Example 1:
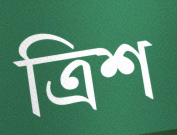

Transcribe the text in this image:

ত্রিশ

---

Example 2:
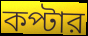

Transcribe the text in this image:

কপ্টার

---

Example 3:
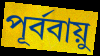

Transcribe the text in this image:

পূর্ববায়ু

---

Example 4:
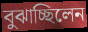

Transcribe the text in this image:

বুঝাচ্ছিলেন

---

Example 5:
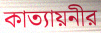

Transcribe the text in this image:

কাত্যায়নীর